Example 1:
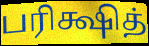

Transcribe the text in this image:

பரிக்ஷித்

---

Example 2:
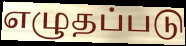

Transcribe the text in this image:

எழுதப்படு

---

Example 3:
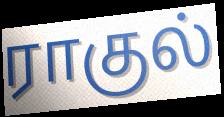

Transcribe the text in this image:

ராகுல்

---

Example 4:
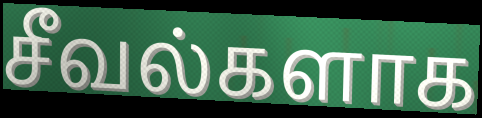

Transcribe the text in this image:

சீவல்களாக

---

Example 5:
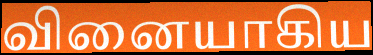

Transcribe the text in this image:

வினையாகிய